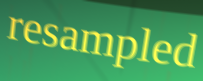
resampled